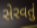
સેરવતું